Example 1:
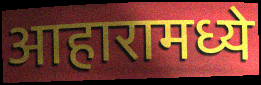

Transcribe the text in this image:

आहारामध्ये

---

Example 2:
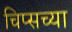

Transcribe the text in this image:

चिप्सच्या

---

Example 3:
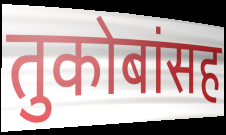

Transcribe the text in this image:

तुकोबांसह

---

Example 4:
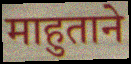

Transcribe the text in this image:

माहुताने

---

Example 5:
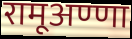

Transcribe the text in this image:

रामूअण्णा